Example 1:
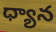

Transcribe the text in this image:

ధ్యాన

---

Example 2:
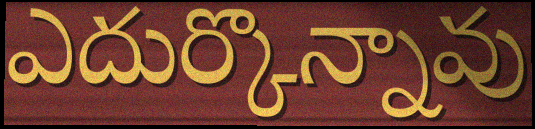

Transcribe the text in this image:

ఎదుర్కొన్నావు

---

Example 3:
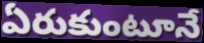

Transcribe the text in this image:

ఏరుకుంటూనే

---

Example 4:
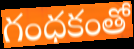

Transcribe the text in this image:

గంధకంతో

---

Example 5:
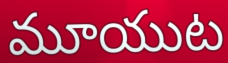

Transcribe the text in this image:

మూయుట